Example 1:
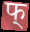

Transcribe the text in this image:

फ्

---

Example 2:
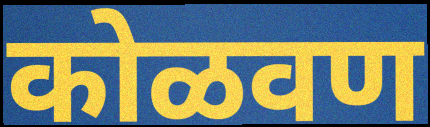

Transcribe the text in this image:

कोळवण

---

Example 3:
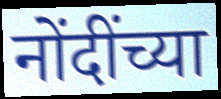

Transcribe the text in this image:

नोंदींच्या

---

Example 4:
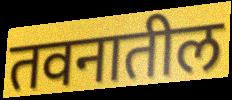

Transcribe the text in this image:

तवनातील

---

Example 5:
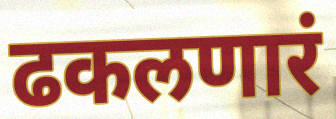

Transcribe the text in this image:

ढकलणारं